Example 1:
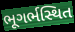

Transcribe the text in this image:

ભૂગર્ભસ્થિત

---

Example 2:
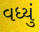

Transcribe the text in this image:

વધ્યું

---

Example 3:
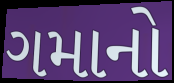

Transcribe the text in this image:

ગમાનો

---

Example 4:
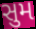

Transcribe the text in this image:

સુમ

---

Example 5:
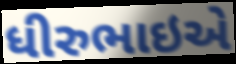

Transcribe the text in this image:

ધીરુભાઇએ